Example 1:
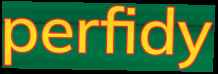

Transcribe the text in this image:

perfidy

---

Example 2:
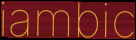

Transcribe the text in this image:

iambic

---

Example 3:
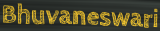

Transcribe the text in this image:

Bhuvaneswari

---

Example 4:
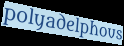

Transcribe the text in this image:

polyadelphous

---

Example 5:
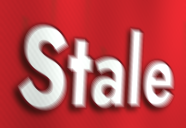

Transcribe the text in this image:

Stale